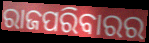
ରାଜପରିବାରର